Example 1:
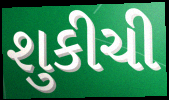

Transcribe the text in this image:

શુકીચી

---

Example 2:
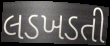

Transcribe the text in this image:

લડખડતી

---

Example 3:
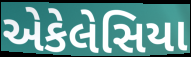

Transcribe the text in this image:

એકેલેસિયા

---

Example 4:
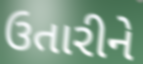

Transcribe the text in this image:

ઉતારીને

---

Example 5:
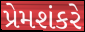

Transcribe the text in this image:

પ્રેમશંકરે